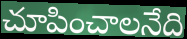
చూపించాలనేది